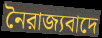
নৈরাজ্যবাদে